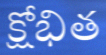
క్షోభిత